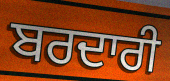
ਬਰਦਾਰੀ